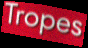
Tropes